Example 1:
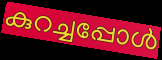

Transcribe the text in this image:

കുറച്ചപ്പോൾ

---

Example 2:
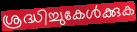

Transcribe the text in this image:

ശ്രദ്ധിച്ചുകേൾക്കുക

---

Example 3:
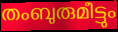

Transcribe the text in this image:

തംബുരുമീട്ടും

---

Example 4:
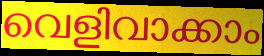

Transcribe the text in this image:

വെളിവാക്കാം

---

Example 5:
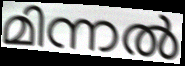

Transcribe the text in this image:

മിന്നൽ